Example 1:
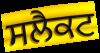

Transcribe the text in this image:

ਸਲੈਕਟ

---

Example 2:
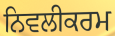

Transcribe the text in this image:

ਨਿਵਲੀਕਰਮ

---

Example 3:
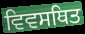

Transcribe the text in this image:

ਵਿਵਸਥਿਤ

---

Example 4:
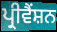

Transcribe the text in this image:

ਪ੍ਰੀਵੈਂਸ਼ਨ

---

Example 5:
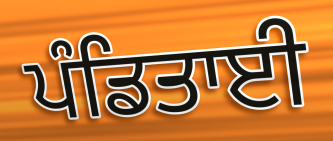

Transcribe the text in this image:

ਪੰਡਿਤਾਈ